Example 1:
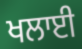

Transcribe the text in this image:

ਖਲਾਈ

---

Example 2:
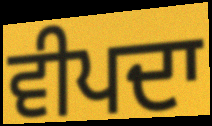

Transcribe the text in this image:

ਵੀਪਦਾ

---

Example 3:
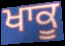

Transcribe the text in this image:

ਖਾਕੂ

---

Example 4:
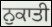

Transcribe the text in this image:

ਨੁਕਾਤੀ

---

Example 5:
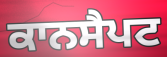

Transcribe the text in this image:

ਕਾਨਸੈਪਟ